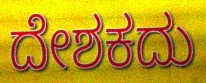
ದೇಶಕದು